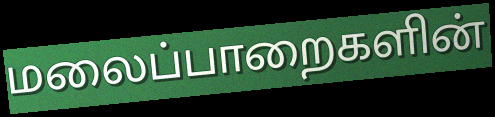
மலைப்பாறைகளின்